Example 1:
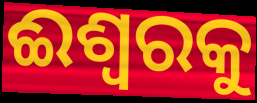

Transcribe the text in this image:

ଈଶ୍ୱରକୁ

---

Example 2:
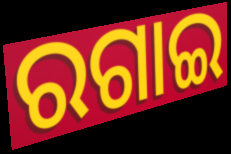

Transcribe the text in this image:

ରଗାଇ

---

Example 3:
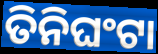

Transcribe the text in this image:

ତିନିଘଂଟା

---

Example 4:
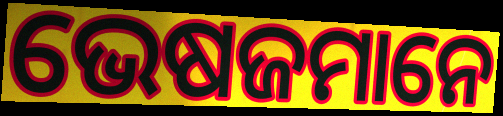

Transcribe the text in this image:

ଭେଷଜମାନେ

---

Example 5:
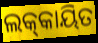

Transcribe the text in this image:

ଲକ୍‌କାୟିତ